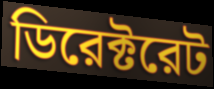
ডিরেক্টরেট